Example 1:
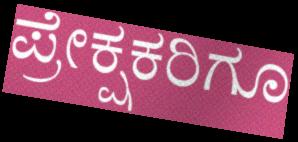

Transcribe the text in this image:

ಪ್ರೇಕ್ಷಕರಿಗೂ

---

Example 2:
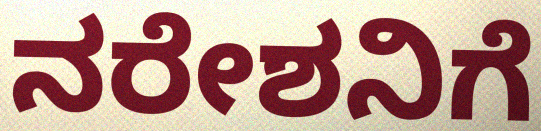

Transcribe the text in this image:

ನರೇಶನಿಗೆ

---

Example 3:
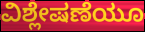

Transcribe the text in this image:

ವಿಶ್ಲೇಷಣೆಯೂ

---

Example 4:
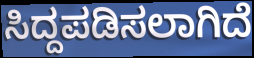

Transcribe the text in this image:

ಸಿದ್ದಪಡಿಸಲಾಗಿದೆ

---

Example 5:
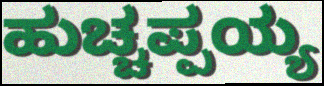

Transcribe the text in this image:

ಹುಚ್ಚಪ್ಪಯ್ಯ